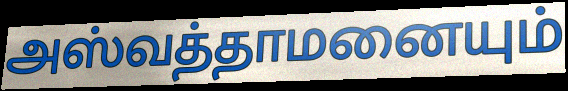
அஸ்வத்தாமனையும்